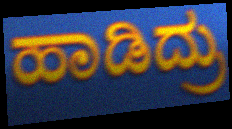
ಹಾಡಿದ್ರು